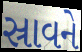
સ્રાવને